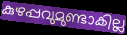
കുഴപ്പവുമുണ്ടാകില്ല